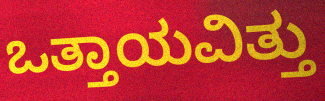
ಒತ್ತಾಯವಿತ್ತು